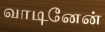
வாடினேன்